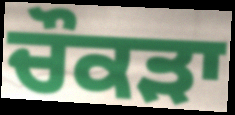
ਚੌਕੜਾ